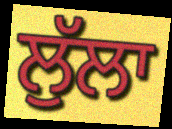
ਲੁੱਲਾ